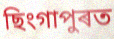
ছিংগাপুৰত